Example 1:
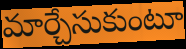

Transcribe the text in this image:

మార్చేసుకుంటూ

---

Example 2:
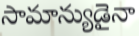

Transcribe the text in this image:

సామాన్యుడైనా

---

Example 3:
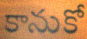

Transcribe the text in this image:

కానుకో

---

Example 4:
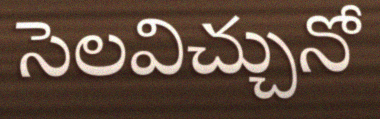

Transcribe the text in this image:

సెలవిచ్చునో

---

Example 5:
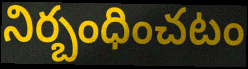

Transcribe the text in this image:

నిర్బంధించటం